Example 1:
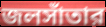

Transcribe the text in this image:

জলসাঁতার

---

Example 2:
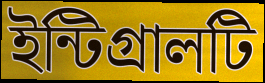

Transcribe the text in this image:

ইন্টিগ্রালটি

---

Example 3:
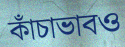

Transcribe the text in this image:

কাঁচাভাবও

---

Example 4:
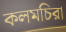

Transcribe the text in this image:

কলমচিরা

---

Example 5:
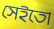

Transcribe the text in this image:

সেইতো